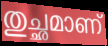
തുച്ഛമാണ്